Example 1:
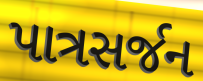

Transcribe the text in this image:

પાત્રસર્જન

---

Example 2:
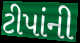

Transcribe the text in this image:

ટીપાંની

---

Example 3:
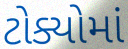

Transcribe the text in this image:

ટોક્યોમાં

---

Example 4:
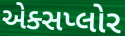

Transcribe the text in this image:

એક્સપ્લોર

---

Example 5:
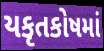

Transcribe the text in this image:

યકૃતકોષમાં